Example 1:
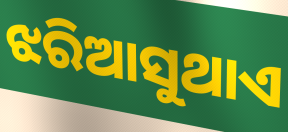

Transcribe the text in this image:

ଝରିଆସୁଥାଏ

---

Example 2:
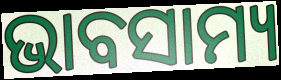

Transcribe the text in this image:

ଭାବସାମ୍ୟ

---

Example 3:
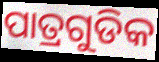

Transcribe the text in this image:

ପାତ୍ରଗୁଡିକ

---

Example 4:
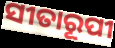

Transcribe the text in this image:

ସୀତାରୂପୀ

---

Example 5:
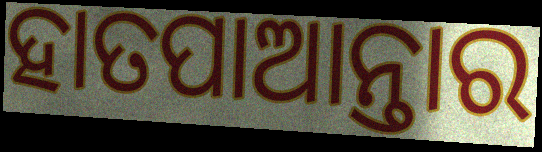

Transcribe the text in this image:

ହାତପାଆନ୍ତାର